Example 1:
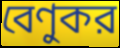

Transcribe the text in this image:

বেণুকর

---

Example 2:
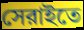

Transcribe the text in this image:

সেরাইতে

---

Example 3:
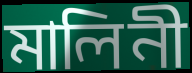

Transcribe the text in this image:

মালিনী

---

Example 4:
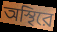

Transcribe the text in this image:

অস্থিরে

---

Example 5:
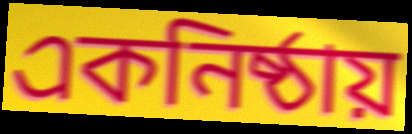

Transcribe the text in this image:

একনিষ্ঠায়